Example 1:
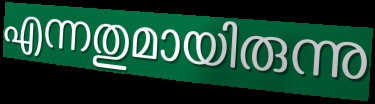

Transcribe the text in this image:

എന്നതുമായിരുന്നു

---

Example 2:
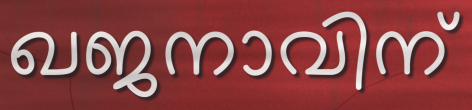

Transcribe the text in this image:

ഖജനാവിന്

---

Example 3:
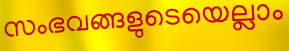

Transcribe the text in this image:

സംഭവങ്ങളുടെയെല്ലാം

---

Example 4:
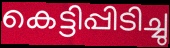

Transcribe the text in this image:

കെട്ടിപ്പിടിച്ചു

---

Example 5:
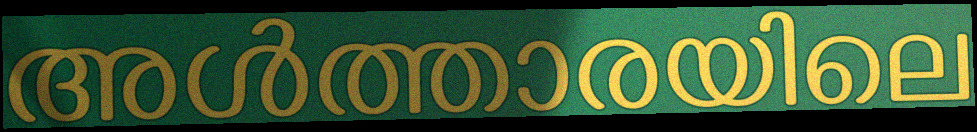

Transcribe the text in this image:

അൾത്താരയിലെ